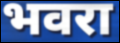
भवरा